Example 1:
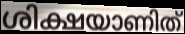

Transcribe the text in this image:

ശിക്ഷയാണിത്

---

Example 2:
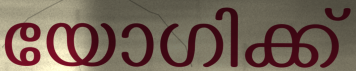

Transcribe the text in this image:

യോഗിക്ക്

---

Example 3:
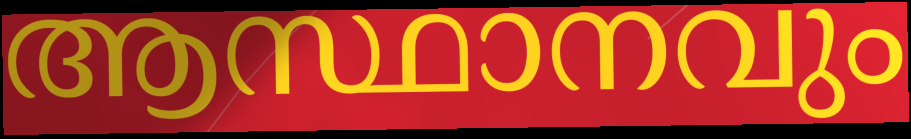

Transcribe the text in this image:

ആസ്ഥാനവും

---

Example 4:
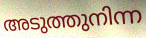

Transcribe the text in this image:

അടുത്തുനിന്ന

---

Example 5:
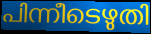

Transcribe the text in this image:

പിന്നീടെഴുതി